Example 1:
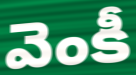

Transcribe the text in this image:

వెంకీ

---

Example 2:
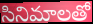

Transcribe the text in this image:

సినిమాలతో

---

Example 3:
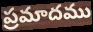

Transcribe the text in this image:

ప్రమాదము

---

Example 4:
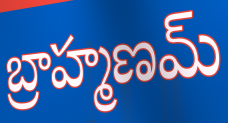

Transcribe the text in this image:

బ్రాహ్మణమ్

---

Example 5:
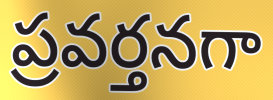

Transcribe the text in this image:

ప్రవర్తనగా